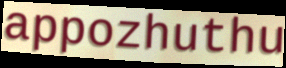
appozhuthu